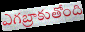
ఎగబ్రాకుతోంది